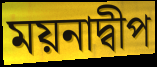
ময়নাদ্বীপ